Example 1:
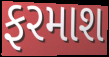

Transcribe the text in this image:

ફરમાશ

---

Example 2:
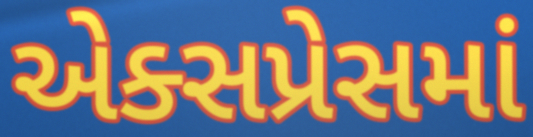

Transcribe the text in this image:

એક્સપ્રેસમાં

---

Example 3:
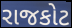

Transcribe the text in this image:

રાજકોટ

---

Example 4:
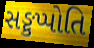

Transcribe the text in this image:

સઙ્કપ્પોતિ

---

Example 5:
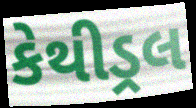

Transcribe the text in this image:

કેથીડ્રલ